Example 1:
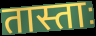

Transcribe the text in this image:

तास्ताः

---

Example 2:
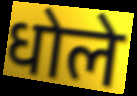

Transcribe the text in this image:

धोले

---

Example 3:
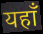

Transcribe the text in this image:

यहाँ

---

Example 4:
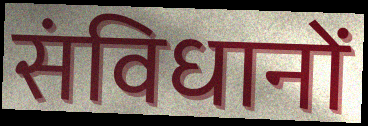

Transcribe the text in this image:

संविधानों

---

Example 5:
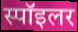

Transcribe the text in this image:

स्पॉइलर